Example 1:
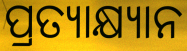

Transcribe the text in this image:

ପ୍ରତ୍ୟାକ୍ଷ୍ୟାନ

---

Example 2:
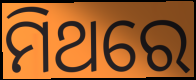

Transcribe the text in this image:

ମିଥରେ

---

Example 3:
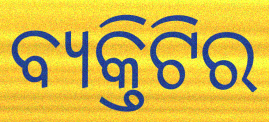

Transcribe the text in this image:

ବ୍ୟକ୍ତିଟିର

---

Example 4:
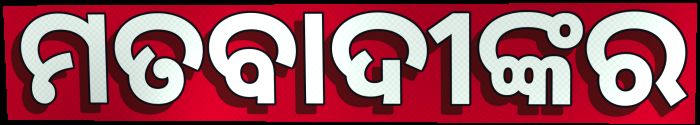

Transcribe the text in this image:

ମତବାଦୀଙ୍କର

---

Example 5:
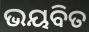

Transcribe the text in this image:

ଭୟବିତ